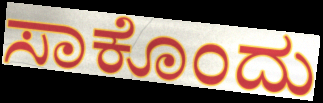
ಸಾಕೊಂದು